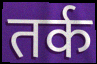
तर्क